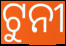
ଟୁନୀ